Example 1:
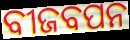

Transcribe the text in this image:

ବୀଜବପନ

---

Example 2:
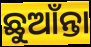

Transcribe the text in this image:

ଛୁଆଁନ୍ତା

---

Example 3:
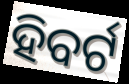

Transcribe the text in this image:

ହିବର୍ଟ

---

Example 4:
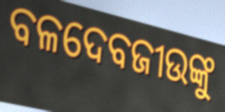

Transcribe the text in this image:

ବଳଦେବଜୀଉଙ୍କୁ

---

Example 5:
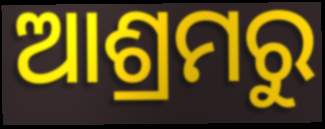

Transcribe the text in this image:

ଆଶ୍ରମରୁ